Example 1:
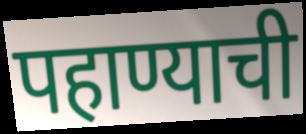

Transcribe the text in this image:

पहाण्याची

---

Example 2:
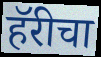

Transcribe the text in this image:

हॅरीचा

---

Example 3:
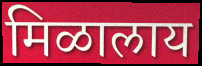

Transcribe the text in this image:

मिळालाय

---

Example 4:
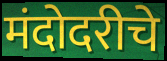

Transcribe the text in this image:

मंदोदरीचे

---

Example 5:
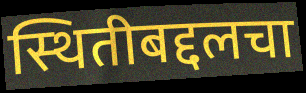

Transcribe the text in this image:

स्थितीबद्दलचा